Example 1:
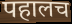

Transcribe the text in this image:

पहालच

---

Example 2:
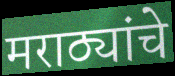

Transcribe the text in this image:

मराठ्यांचे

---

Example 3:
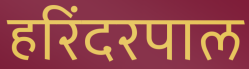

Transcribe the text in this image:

हरिंदरपाल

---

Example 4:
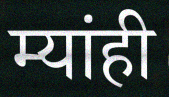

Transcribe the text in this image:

म्यांही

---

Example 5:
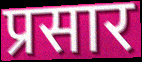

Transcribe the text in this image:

प्रसार